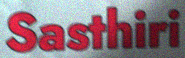
Sasthiri